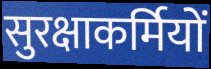
सुरक्षाकर्मियों